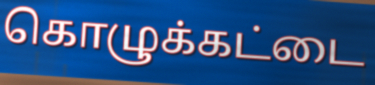
கொழுக்கட்டை